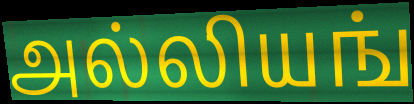
அல்லியங்